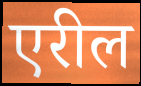
एरील